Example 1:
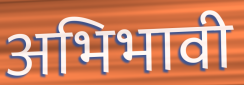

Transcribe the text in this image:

अभिभावी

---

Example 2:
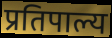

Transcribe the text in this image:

प्रतिपाल्य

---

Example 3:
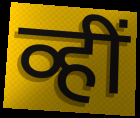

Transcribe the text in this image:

व्हीं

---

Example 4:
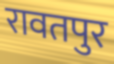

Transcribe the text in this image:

रावतपुर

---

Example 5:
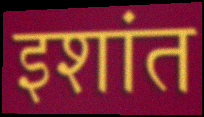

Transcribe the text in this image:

इशांत